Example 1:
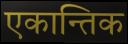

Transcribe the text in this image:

एकान्तिक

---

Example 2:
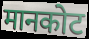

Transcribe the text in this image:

मानकोट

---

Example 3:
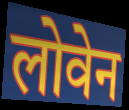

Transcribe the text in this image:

लोवेन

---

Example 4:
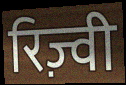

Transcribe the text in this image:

रिज़्वी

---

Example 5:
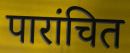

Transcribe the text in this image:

पारांचित